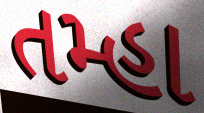
તમ્હા